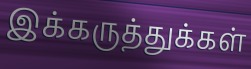
இக்கருத்துக்கள்